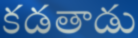
కడతాడు